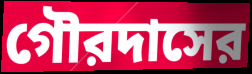
গৌরদাসের